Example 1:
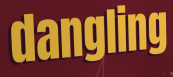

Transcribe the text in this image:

dangling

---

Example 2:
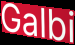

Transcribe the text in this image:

Galbi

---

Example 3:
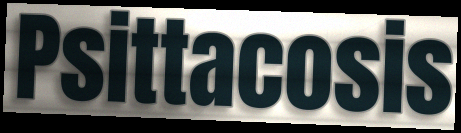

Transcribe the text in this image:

Psittacosis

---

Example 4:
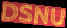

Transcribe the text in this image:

DSNU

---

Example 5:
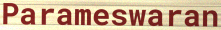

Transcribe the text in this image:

Parameswaran